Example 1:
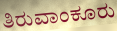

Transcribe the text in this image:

ತಿರುವಾಂಕೂರು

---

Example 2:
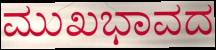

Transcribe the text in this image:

ಮುಖಭಾವದ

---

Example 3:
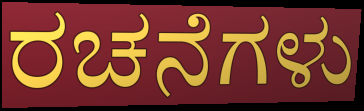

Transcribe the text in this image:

ರಚನೆಗಳು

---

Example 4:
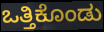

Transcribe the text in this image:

ಒತ್ತಿಕೊಂಡು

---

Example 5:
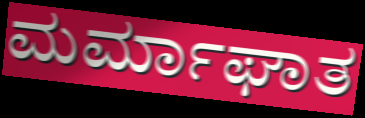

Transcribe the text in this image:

ಮರ್ಮಾಘಾತ